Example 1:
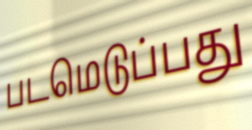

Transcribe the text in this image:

படமெடுப்பது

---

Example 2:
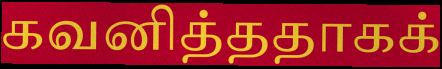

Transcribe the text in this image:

கவனித்ததாகக்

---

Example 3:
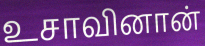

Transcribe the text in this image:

உசாவினான்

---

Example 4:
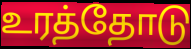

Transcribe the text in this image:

உரத்தோடு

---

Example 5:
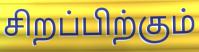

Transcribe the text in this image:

சிறப்பிற்கும்